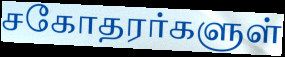
சகோதரர்களுள்